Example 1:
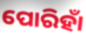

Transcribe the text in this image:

ପୋରିହାଁ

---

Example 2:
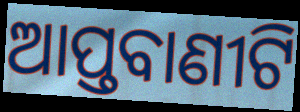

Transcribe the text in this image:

ଆପ୍ତବାଣୀଟି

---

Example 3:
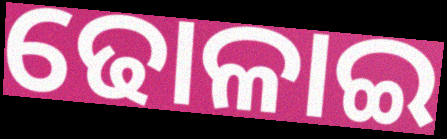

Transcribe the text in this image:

ଢୋଳାଇ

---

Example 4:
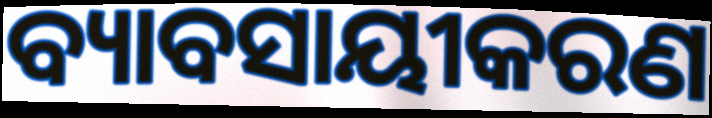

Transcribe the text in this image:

ବ୍ୟାବସାୟୀକରଣ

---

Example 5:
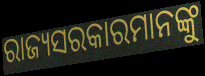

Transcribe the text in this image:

ରାଜ୍ୟସରକାରମାନଙ୍କୁ